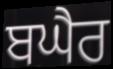
ਬਘੈਰ